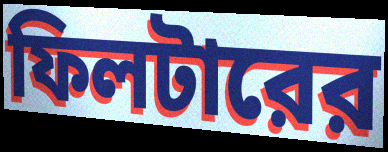
ফিলটারের